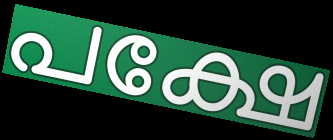
പക്ഷേ